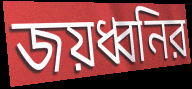
জয়ধ্বনির